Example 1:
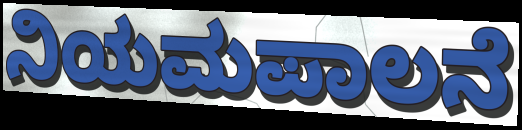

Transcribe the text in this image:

ನಿಯಮಪಾಲನೆ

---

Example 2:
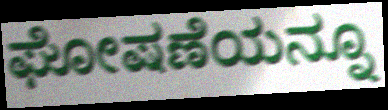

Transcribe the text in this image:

ಘೋಷಣೆಯನ್ನೂ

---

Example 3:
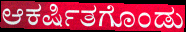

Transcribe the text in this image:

ಆಕರ್ಷಿತಗೊಂಡು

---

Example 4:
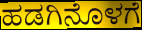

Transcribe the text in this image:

ಹಡಗಿನೊಳಗೆ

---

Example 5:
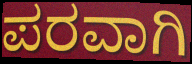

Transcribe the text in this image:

ಪರವಾಗಿ